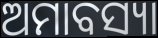
ଅମାବସ୍ୟା